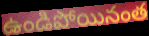
ఉండిపోయినంత